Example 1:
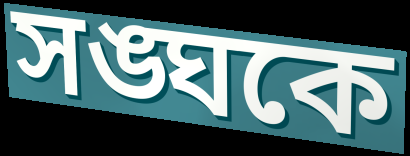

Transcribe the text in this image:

সঙ্ঘকে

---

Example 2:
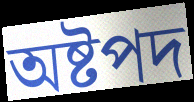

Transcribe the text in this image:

অষ্টপদ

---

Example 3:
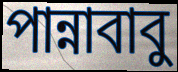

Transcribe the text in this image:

পান্নাবাবু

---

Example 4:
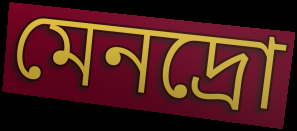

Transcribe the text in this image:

মেনদ্রো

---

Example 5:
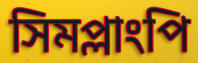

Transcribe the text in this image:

সিমপ্লাংপি